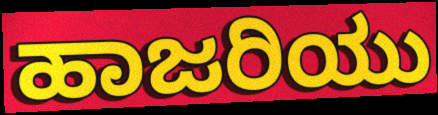
ಹಾಜರಿಯು